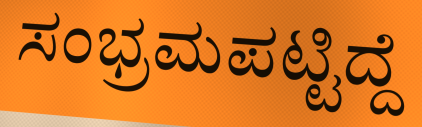
ಸಂಭ್ರಮಪಟ್ಟಿದ್ದೆ